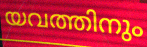
യവത്തിനും